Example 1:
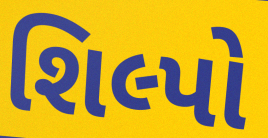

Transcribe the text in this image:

શિલ્પો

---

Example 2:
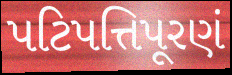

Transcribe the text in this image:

પટિપત્તિપૂરણં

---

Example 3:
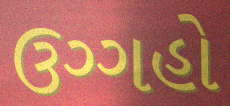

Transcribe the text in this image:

ઉગ્ગહો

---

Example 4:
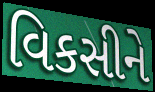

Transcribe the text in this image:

વિકસીને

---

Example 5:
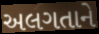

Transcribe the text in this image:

અલગતાને